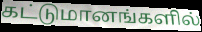
கட்டுமானங்களில்